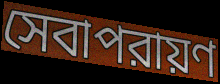
সেবাপরায়ণ